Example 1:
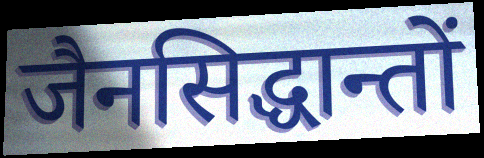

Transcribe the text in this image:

जैनसिद्धान्तों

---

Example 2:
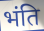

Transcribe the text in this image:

भंति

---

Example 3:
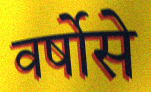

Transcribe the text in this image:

वर्षोसे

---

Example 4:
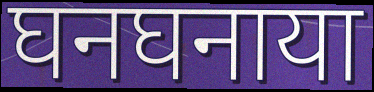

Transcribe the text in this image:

घनघनाया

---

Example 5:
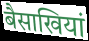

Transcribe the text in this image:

बैसाखियां